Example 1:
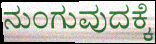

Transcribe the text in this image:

ನುಂಗುವುದಕ್ಕೆ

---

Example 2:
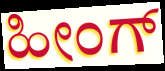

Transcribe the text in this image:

ಹೀಂಗ್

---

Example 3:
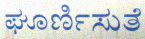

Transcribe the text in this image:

ಘೂರ್ಣಿಸುತೆ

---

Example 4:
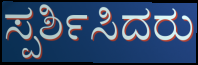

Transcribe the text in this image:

ಸ್ಪರ್ಶಿಸಿದರು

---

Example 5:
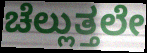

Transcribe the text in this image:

ಚೆಲ್ಲುತ್ತಲೇ